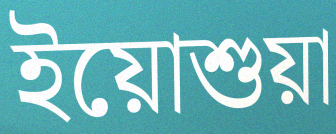
ইয়োশুয়া